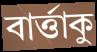
বার্ত্তাকু